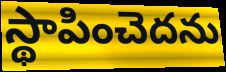
స్థాపించెదను